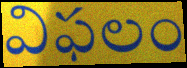
విఫలం